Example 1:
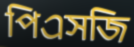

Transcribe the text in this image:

পিএসজি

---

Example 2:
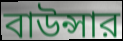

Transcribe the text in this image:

বাউন্সার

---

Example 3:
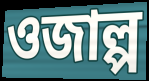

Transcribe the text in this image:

ওজাল্প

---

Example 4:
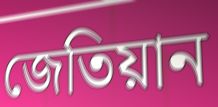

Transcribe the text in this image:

জেতিয়ান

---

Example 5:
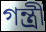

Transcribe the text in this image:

গন্ত্রী